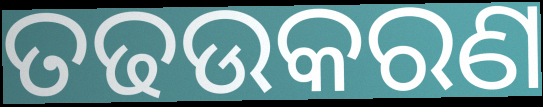
ତଢଉକରଣ